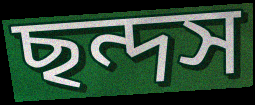
ছন্দস